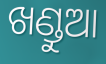
ଖଣ୍ଡୁଆ